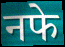
नफे